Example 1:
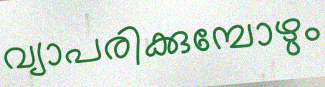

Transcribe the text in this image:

വ്യാപരിക്കുമ്പോഴും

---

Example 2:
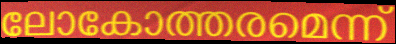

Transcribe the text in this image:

ലോകോത്തരമെന്ന്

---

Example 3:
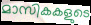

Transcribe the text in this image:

മാസികകളുടെ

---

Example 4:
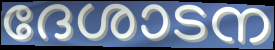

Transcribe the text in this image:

ദേശാടന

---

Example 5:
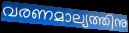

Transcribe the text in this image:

വരണമാല്യത്തിനു